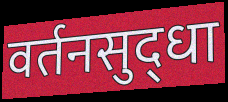
वर्तनसुद्धा